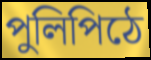
পুলিপিঠে